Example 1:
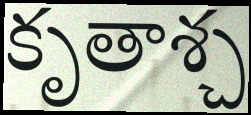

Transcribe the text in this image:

కృతాశ్చ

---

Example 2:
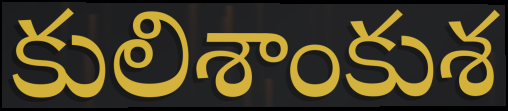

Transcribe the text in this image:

కులిశాంకుశ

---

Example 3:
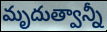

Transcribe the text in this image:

మృదుత్వాన్నీ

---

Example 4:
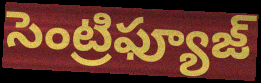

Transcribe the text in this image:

సెంట్రిఫ్యూజ్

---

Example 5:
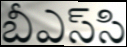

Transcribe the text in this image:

బీఎస్‌సి